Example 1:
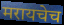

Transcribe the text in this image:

मरायचेच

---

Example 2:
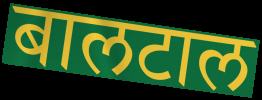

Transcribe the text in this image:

बालटाल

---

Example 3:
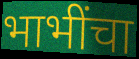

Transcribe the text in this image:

भाभींचा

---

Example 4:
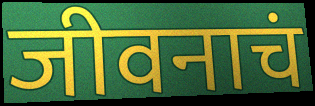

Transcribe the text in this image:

जीवनाचं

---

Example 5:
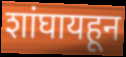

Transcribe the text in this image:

शांघायहून